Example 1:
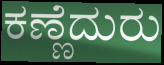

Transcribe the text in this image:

ಕಣ್ಣೆದುರು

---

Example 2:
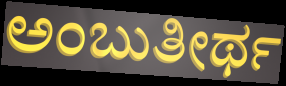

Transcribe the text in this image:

ಅಂಬುತೀರ್ಥ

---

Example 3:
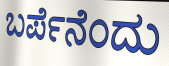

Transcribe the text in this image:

ಬರ್ಪೆನೆಂದು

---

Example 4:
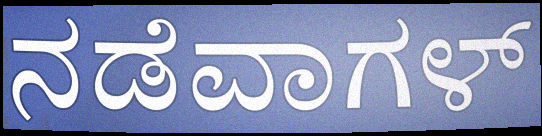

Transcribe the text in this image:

ನಡೆವಾಗಳ್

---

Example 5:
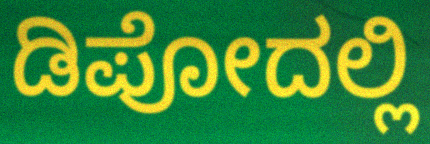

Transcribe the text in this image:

ಡಿಪೋದಲ್ಲಿ